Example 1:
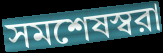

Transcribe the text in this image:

সমশেষস্বরা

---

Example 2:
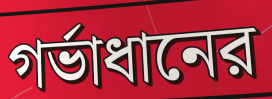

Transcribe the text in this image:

গর্ভাধানের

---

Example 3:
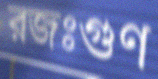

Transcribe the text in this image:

রজঃগুণ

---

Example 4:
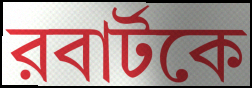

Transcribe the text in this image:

রবার্টকে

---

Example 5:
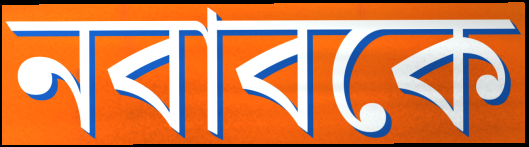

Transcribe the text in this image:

নবাবকে